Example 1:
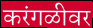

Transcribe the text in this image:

करंगळीवर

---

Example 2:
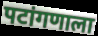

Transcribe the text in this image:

पटांगणाला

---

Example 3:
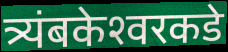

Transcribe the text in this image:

त्र्यंबकेश्वरकडे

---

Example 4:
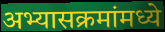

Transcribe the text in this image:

अभ्यासक्रमांमध्ये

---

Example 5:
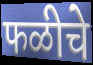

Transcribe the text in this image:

फळीचे